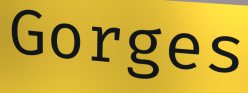
Gorges